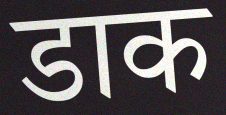
डाक